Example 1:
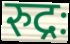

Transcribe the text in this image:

रुद्रः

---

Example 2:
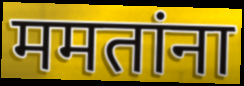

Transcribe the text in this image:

ममतांना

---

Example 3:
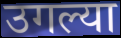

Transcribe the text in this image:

उगल्या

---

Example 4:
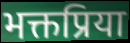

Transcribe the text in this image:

भक्तप्रिया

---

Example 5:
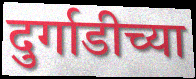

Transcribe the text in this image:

दुर्गाडीच्या